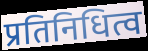
प्रतिनिधित्व